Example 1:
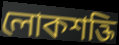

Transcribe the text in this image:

লোকশক্তি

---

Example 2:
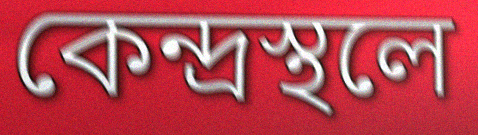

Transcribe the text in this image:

কেন্দ্রস্থলে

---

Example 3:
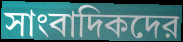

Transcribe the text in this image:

সাংবাদিকদের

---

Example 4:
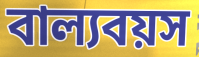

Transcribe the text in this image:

বাল্যবয়স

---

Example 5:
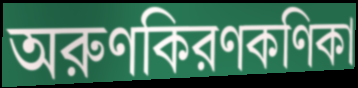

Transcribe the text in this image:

অরুণকিরণকণিকা